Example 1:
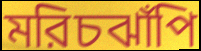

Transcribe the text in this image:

মরিচঝাঁপি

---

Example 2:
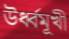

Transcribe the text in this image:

উর্ধ্বমূখী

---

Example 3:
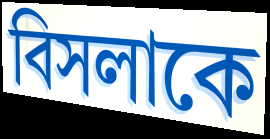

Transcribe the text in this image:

বিসলাকে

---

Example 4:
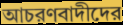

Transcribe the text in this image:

আচরণবাদীদের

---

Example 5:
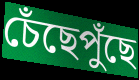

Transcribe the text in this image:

চেঁছেপুঁছে